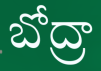
బోద్రా